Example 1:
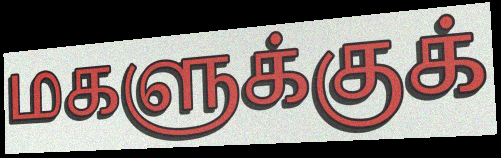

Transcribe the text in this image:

மகளுக்குக்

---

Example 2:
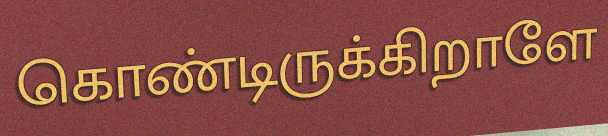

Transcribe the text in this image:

கொண்டிருக்கிறாளே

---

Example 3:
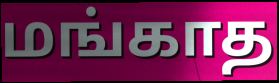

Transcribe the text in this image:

மங்காத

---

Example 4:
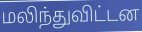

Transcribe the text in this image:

மலிந்துவிட்டன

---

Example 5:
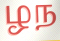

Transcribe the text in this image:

ழந